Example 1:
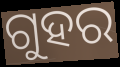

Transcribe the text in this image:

ଗୁହର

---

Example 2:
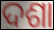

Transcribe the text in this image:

ଦଶା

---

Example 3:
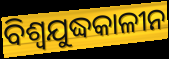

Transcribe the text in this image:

ବିଶ୍ୱଯୁଦ୍ଧକାଳୀନ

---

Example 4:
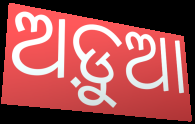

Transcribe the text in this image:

ଅଡ଼ୁଆ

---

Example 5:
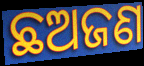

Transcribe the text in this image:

ଛଅଜଣ